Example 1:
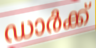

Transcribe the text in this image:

ഡാർക്ക്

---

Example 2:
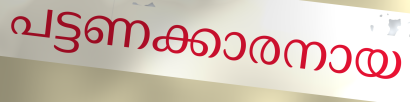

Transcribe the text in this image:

പട്ടണക്കാരനായ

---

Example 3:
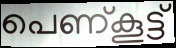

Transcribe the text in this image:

പെണ്കൂട്ട്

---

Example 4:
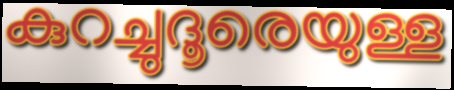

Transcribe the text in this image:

കുറച്ചുദൂരെയുള്ള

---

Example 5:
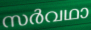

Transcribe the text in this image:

സർവഥാ